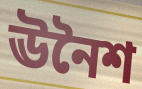
ঊনৈশ